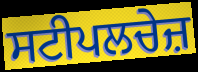
ਸਟੀਪਲਚੇਜ਼